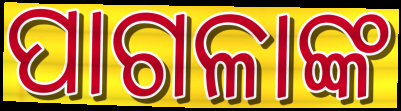
ପାଗଳାଙ୍କ